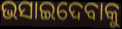
ଭସାଇଦେବାକୁ